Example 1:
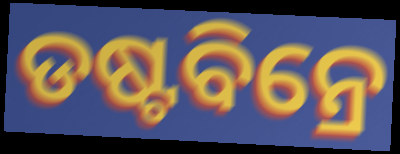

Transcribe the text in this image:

ଡଷ୍ଟବିନ୍ରେ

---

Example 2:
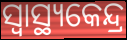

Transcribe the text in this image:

ସ୍ୱାସ୍ଥ୍ୟକେନ୍ଦ୍ର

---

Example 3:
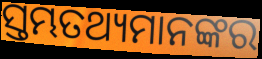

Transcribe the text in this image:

ସ୍ତମ୍ଭତଥ୍ୟମାନଙ୍କର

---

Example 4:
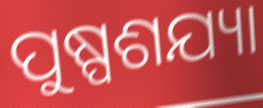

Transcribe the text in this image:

ପୁଷ୍ପଶଯ୍ୟା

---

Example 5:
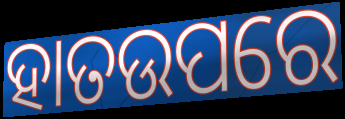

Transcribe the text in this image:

ହାତଉପରେ